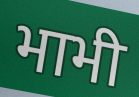
भाभी